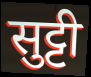
सुट्टी